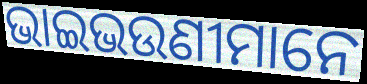
ଭାଇଭଉଣୀମାନେ